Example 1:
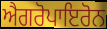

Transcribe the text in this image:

ਐਗਰੋਪਾਇਰੋਨ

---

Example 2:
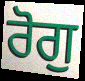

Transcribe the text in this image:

ਰੋਗੁ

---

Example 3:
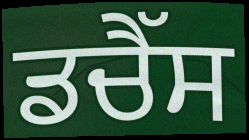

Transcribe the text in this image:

ਡਚੈੱਸ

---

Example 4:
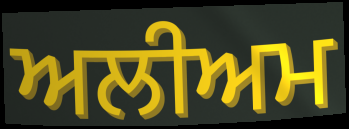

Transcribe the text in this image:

ਅਲੀਅਮ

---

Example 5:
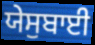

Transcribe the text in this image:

ਯੇਸੁਬਾਈ